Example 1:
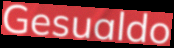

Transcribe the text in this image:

Gesualdo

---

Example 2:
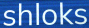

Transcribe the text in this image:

shloks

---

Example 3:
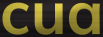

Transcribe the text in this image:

cua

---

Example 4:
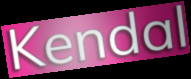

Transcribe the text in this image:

Kendal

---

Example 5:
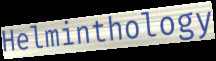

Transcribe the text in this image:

Helminthology